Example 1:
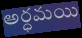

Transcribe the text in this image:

అర్ధమయి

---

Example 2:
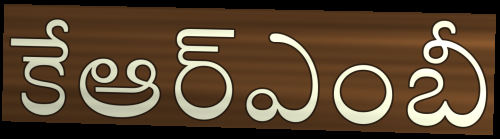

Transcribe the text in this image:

కేఆర్ఎంబీ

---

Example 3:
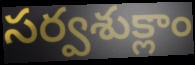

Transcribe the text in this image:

సర్వశుక్లాం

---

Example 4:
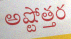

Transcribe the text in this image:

అష్టోత్తర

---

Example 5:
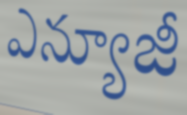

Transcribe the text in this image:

ఎన్యూజీ